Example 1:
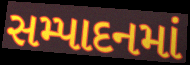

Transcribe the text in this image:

સમ્પાદનમાં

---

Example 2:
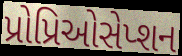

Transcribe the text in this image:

પ્રોપ્રિઓસેપ્શન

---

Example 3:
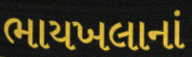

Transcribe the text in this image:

ભાયખલાનાં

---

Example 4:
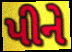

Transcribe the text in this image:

પીને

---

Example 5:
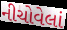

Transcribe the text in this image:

નીચોવેલાં